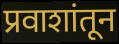
प्रवाशांतून